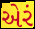
એરં